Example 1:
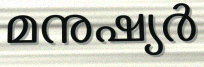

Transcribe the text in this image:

മനുഷ്യർ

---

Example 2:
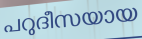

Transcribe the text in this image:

പറുദീസയായ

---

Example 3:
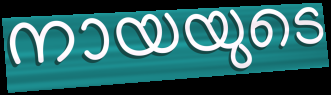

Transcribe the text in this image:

നായയുടെ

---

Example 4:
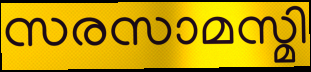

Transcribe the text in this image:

സരസാമസ്മി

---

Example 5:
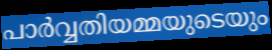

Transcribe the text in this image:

പാർവ്വതിയമ്മയുടെയും